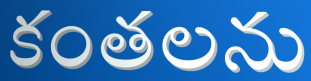
కంతలను